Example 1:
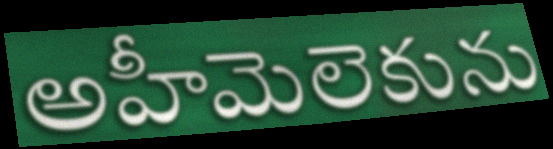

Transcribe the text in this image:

అహీమెలెకును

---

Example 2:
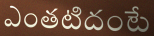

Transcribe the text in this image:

ఎంతటిదంటే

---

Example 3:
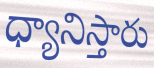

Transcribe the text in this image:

ధ్యానిస్తారు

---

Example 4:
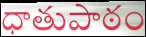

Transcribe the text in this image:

ధాతుపాఠం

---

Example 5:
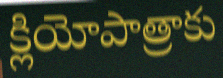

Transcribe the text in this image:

క్లియోపాత్రాకు